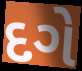
દગે